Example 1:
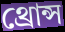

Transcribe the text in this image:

থ্রোন্স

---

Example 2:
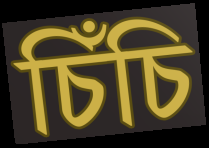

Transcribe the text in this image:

চিঁচি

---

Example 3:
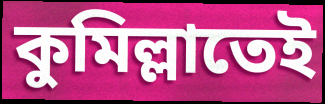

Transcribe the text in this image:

কুমিল্লাতেই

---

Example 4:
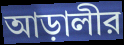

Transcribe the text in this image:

আড়ালীর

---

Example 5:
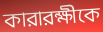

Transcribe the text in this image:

কারারক্ষীকে